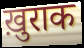
ख़ुराक